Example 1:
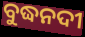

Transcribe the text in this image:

ବୁଦ୍ଧନଦୀ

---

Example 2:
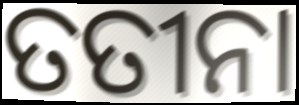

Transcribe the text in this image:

ତତୀନା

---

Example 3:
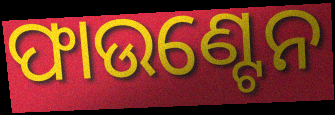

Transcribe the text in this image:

ଫାଉଣ୍ଟେନ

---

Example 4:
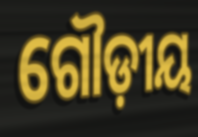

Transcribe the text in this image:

ଗୌଡ଼ୀୟ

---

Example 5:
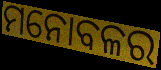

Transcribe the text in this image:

ମନୋବଳର